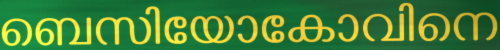
ബെസിയോകോവിനെ